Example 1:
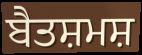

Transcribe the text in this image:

ਬੈਤਸ਼ਮਸ਼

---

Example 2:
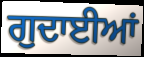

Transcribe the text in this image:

ਗੁਦਾਈਆਂ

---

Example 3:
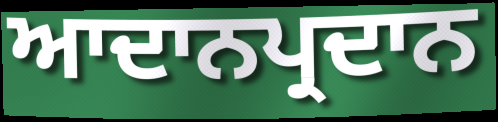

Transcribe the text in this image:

ਆਦਾਨਪ੍ਰਦਾਨ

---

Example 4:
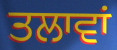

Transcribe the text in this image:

ਤਲਾਵਾਂ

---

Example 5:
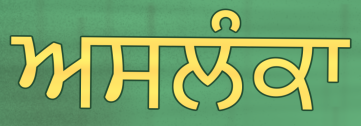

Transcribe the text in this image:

ਅਸਲੰਕਾ